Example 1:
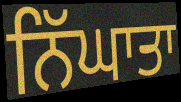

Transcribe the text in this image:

ਨਿੱਘਾਤਾ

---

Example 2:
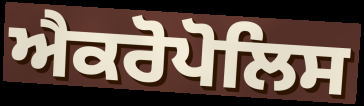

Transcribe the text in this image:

ਐਕਰੋਪੋਲਿਸ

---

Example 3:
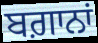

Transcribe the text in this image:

ਬਗ਼ਾਨਾਂ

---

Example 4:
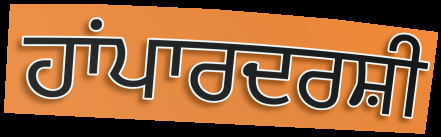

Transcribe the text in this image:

ਹਾਂਪਾਰਦਰਸ਼ੀ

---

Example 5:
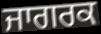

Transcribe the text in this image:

ਜਾਗਰਕ